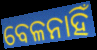
ବେଳନାହିଁ